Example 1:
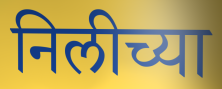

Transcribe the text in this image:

निलीच्या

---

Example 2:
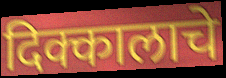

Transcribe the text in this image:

दिक्कालाचे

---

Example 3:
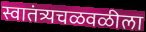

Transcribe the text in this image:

स्वातंत्र्यचळवळीला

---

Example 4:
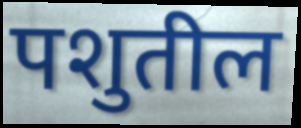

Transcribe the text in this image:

पशुतील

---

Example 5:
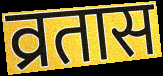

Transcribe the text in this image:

व्रतास